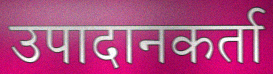
उपादानकर्ता